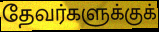
தேவர்களுக்குக்